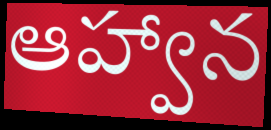
ఆహ్వాన